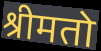
श्रीमतो